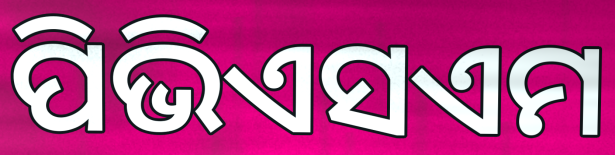
ପିଭିଏସଏମ